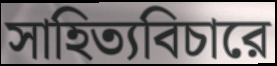
সাহিত্যবিচারে